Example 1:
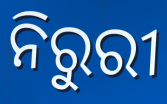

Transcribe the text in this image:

ନିରୁରୀ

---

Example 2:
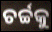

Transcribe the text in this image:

ଚର୍ଚ୍ଚକୁ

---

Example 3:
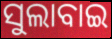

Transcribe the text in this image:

ସୁଲାବାଇ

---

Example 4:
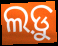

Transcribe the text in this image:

ଲଡ଼ୁ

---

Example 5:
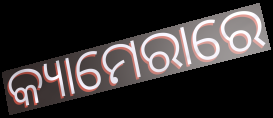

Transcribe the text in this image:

କ୍ୟାମେରାରେ